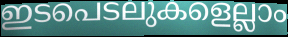
ഇടപെടലുകളെല്ലാം